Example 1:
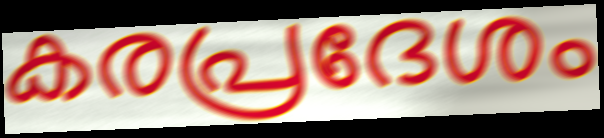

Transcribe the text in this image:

കരപ്രദേശം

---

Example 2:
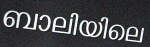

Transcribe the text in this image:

ബാലിയിലെ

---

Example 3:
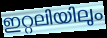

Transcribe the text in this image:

ഇറ്റലിയിലും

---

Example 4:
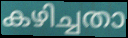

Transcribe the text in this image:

കഴിച്ചതാ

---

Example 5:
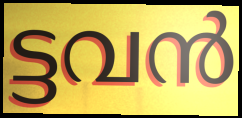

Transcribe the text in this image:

ട്ടവൻ